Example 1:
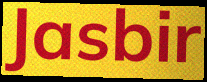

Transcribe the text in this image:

Jasbir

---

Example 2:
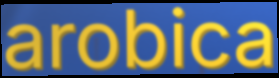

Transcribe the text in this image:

arobica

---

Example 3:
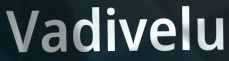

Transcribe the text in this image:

Vadivelu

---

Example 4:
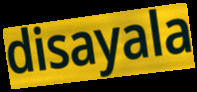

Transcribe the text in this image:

disayala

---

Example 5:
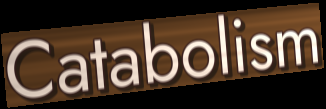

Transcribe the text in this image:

Catabolism